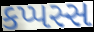
કપ્પસ્સ